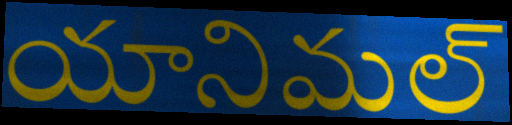
యానిమల్